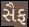
સૈફ